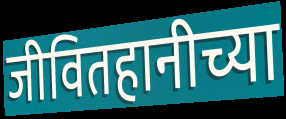
जीवितहानीच्या